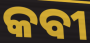
କବୀ